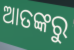
ଆତଙ୍କରୁ